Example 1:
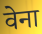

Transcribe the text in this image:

वेना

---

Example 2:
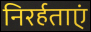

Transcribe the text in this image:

निरर्हताएं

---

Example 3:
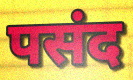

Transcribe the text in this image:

पसंद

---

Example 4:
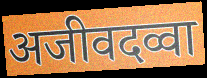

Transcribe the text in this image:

अजीवदव्वा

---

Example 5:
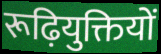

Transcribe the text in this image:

रूढ़ियुक्तियों